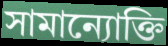
সামান্যোক্তি